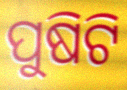
ପୁଷିଟି